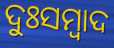
ଦୁଃସମ୍ୱାଦ